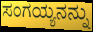
ಸಂಗಯ್ಯನನ್ನು